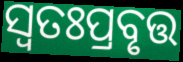
ସ୍ୱତଃପ୍ରବୃତ୍ତ